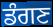
ਡੰਗਣ